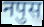
नपुस